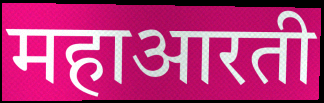
महाआरती